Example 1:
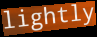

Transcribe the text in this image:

lightly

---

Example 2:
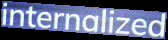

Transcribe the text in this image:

internalized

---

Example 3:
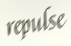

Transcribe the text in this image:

repulse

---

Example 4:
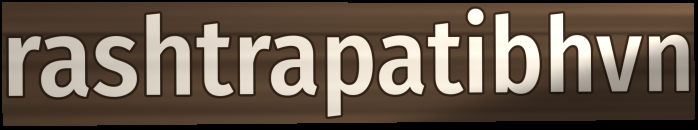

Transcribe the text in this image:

rashtrapatibhvn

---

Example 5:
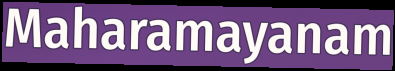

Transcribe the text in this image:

Maharamayanam